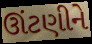
ઊંટણીને